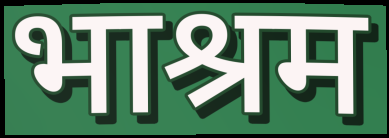
भाश्रम